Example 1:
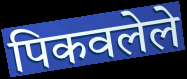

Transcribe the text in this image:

पिकवलेले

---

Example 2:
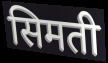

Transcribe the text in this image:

सिमती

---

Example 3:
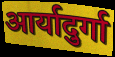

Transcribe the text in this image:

आर्यादुर्गा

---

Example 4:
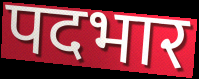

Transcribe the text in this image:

पदभार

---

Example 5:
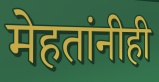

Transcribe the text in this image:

मेहतांनीही